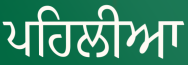
ਪਹਿਲੀਆ